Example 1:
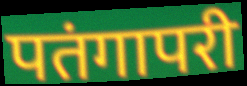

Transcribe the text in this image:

पतंगापरी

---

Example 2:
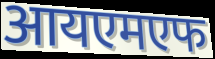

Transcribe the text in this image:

आयएमएफ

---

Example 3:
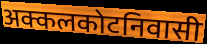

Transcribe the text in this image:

अक्कलकोटनिवासी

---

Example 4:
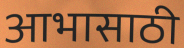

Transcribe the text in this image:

आभासाठी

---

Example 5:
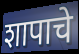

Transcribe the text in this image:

शापाचे